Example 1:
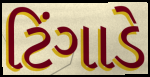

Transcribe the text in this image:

ટિંગાડે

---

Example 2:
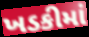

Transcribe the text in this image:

ખડકીમાં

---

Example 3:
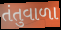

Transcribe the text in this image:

તંતુવાળા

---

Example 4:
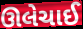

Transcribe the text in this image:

ઊલેચાઈ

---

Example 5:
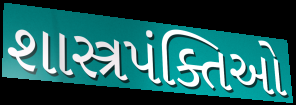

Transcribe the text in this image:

શાસ્ત્રપંક્તિઓ